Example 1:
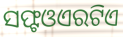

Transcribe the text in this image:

ସଫ୍ଟଓଏରଟିଏ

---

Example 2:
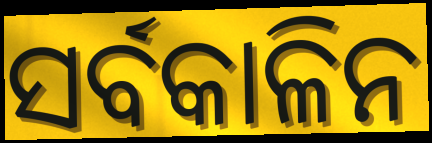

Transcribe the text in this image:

ସର୍ବକାଳିନ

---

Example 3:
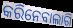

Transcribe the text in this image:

କରିନେବାଲାଗି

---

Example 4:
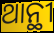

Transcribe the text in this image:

ଥାନ୍ଥୀ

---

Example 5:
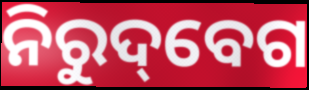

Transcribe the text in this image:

ନିରୁଦ୍‌ବେଗ